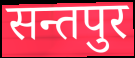
सन्तपुर